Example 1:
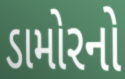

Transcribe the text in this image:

ડામોરનો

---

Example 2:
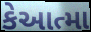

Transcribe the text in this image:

કેઆત્મા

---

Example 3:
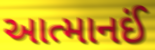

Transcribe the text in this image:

આત્માનઈં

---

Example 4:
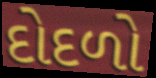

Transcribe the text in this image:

દોદળો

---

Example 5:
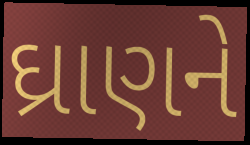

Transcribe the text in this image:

ઘ્રાણને